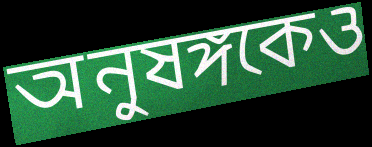
অনুষঙ্গকেও